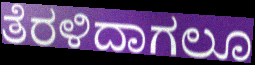
ತೆರಳಿದಾಗಲೂ